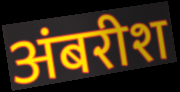
अंबरीश